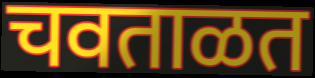
चवताळत